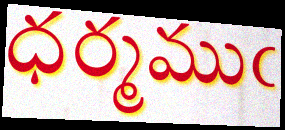
ధర్మముఁ